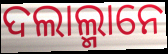
ଦଲାଲ୍ମାନେ